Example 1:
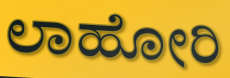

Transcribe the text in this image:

ಲಾಹೋರಿ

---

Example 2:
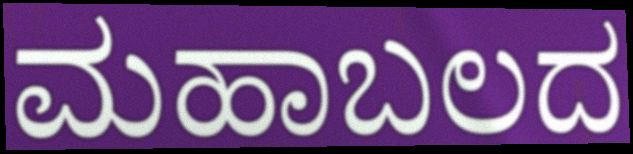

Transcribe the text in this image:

ಮಹಾಬಲದ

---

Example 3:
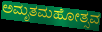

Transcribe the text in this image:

ಅಮೃತಮಹೋತ್ಸವ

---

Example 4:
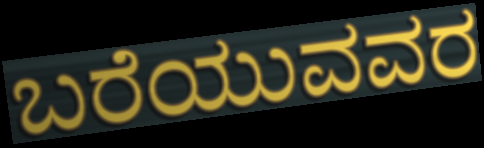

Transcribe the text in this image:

ಬರೆಯುವವರ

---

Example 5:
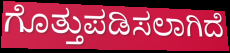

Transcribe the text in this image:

ಗೊತ್ತುಪಡಿಸಲಾಗಿದೆ